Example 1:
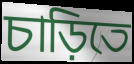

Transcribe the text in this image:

চাড়িতে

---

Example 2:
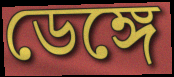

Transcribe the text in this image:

ডেঙ্গে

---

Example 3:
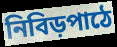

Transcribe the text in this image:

নিবিড়পাঠে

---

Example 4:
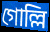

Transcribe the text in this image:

গোল্লি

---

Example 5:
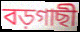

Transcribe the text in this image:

বড়গাছী